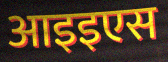
आइइएस